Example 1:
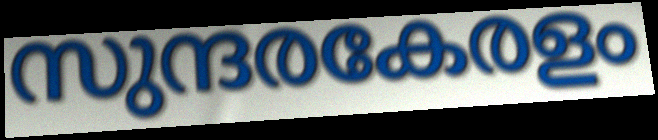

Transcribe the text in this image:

സുന്ദരകേരളം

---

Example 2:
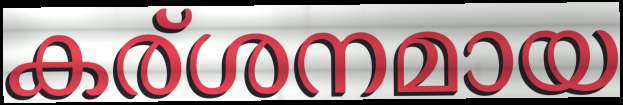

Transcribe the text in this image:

കര്ശനമായ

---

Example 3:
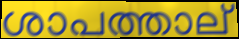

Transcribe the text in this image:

ശാപത്താല്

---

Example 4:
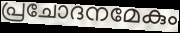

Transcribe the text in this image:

പ്രചോദനമേകും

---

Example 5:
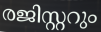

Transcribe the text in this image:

രജിസ്റ്ററും